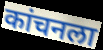
कांचनला